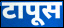
टापूस